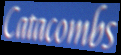
Catacombs